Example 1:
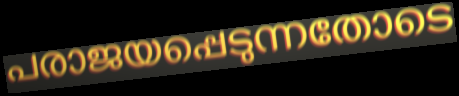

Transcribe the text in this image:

പരാജയപ്പെടുന്നതോടെ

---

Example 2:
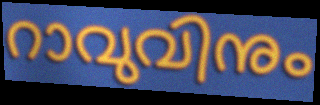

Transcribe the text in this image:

റാവുവിനും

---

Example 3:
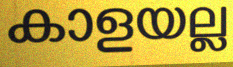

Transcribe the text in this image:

കാളയല്ല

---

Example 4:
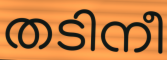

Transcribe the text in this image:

തടിനീ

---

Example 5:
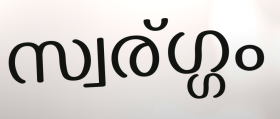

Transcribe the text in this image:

സ്വര്ഗ്ഗം